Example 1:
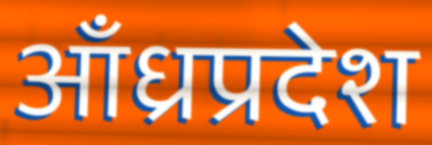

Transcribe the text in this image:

आँध्रप्रदेश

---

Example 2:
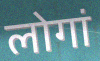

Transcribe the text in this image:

लोगां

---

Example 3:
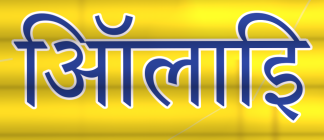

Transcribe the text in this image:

ऑिलाइि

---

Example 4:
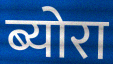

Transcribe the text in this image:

ब्योरा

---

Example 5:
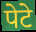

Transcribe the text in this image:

पेटे